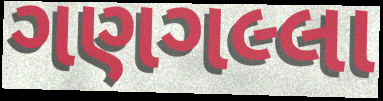
ગણગલ્લા